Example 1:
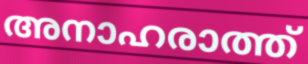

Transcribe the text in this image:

അനാഹരാത്ത്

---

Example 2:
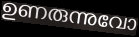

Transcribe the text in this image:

ഉണരുന്നുവോ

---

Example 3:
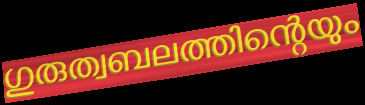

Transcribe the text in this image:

ഗുരുത്വബലത്തിന്റെയും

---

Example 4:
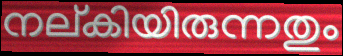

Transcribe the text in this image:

നല്കിയിരുന്നതും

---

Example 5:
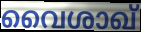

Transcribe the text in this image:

വൈശാഖ്